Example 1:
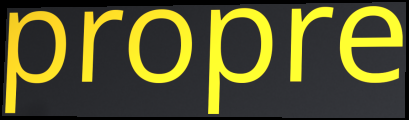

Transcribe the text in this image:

propre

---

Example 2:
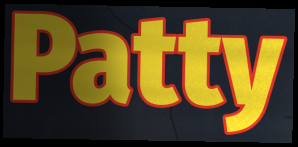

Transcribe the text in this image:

Patty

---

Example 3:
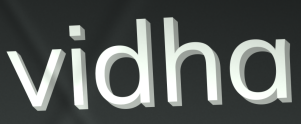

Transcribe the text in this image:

vidha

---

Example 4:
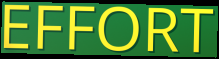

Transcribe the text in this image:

EFFORT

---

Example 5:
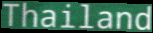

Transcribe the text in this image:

Thailand